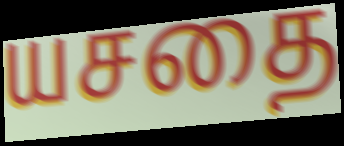
யசதை